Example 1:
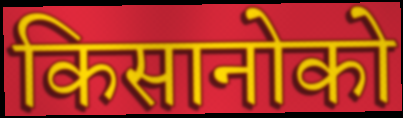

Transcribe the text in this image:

किसानोको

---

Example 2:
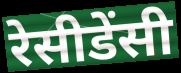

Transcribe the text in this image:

रेसीडेंसी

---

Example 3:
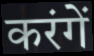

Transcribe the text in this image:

करंगें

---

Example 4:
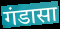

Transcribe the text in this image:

गंडासा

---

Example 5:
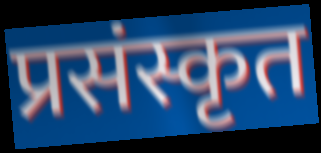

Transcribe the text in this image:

प्रसंस्कृत